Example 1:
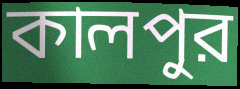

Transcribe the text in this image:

কালপুর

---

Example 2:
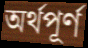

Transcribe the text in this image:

অর্থপূর্ণ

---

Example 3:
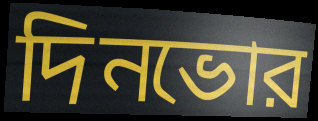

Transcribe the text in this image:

দিনভোর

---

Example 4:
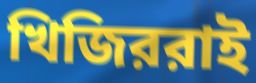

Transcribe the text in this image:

খিজিররাই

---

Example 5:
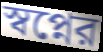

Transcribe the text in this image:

স্বপ্নের